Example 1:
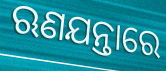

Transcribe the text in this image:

ଋଣଯନ୍ତାରେ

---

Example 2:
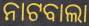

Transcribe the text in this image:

ନାଟବାଲା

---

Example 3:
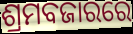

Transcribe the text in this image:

ଶ୍ରମବଜାରରେ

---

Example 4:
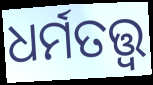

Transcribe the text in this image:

ଧର୍ମତତ୍ତ୍ଵ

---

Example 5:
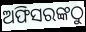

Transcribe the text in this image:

ଅଫିସରଙ୍କଠୁ